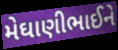
મેઘાણીભાઈને